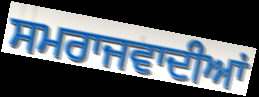
ਸਮਰਾਜਵਾਦੀਆਂ